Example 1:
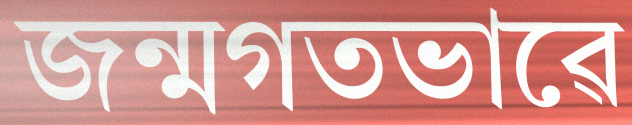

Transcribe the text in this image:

জন্মগতভাৱে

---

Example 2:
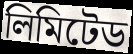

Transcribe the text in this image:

লিমিটেড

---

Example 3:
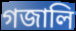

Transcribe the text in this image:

গজালি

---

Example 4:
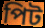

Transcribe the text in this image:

পিট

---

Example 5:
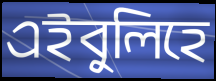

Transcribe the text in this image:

এইবুলিহে